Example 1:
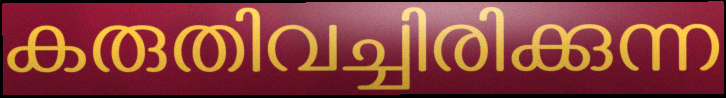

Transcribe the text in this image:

കരുതിവച്ചിരിക്കുന്ന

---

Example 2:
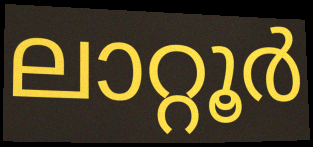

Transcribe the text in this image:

ലാറ്റൂർ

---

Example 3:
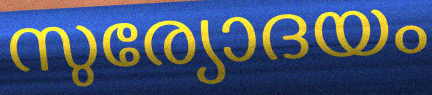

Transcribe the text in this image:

സുര്യോദയം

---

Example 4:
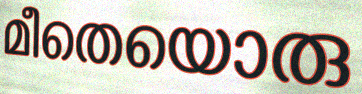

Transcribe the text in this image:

മീതെയൊരു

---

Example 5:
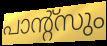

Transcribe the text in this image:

പാന്റ്സും